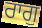
ਰਾਗੁ